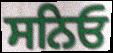
ਸਨਿਓ